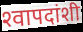
श्वापदांशी